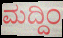
ಮದ್ದಿಂ